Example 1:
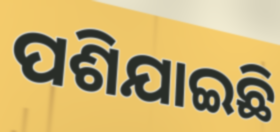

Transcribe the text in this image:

ପଶିଯାଇଛି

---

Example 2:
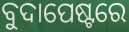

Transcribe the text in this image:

ବୁଦାପେଷ୍ଟରେ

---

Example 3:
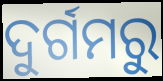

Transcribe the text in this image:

ଦୁର୍ଗମରୁ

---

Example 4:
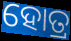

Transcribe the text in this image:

ହୋତ୍ର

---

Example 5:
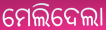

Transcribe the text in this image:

ମେଲିଦେଲା